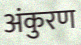
अंकुरण